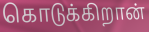
கொடுக்கிறான்